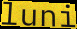
luni